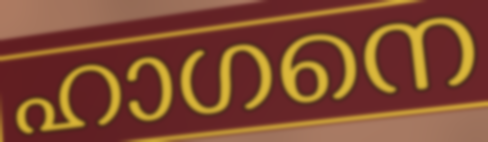
ഹാഗനെ